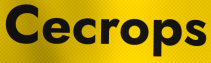
Cecrops